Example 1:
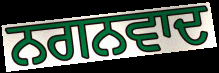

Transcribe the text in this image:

ਨਗਨਵਾਦ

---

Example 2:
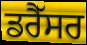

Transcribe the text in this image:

ਡਰੈੱਸਰ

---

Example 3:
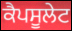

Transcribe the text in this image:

ਕੈਪਸੂਲੇਟ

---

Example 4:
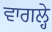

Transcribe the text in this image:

ਵਾਗਲ੍ਹੇ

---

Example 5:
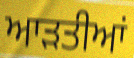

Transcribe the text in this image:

ਆਡ਼ਤੀਆਂ